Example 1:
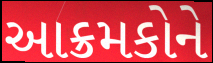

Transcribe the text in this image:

આક્રમકોને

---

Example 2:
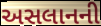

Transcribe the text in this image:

અસલાનની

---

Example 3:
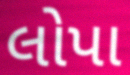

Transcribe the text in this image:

લોપા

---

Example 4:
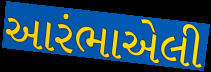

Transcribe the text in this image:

આરંભાએલી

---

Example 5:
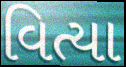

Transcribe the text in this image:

વિત્યા